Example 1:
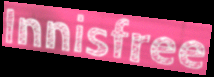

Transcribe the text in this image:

Innisfree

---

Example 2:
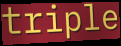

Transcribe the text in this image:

triple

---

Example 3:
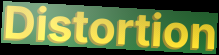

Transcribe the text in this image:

Distortion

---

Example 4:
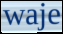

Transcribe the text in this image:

waje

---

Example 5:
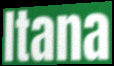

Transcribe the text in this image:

Itana